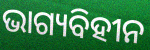
ଭାଗ୍ୟବିହୀନ